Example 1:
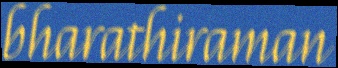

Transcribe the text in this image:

bharathiraman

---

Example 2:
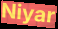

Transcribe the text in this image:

Niyar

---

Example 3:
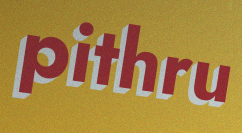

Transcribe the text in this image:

pithru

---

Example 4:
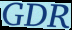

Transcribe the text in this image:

GDR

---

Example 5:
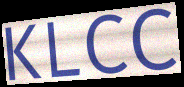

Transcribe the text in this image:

KLCC